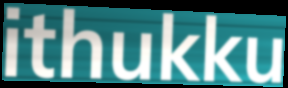
ithukku